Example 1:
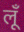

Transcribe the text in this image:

लूँ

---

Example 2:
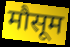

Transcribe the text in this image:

मौसूम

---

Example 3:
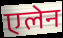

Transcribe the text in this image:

एलेन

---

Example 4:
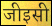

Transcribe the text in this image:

जीइसी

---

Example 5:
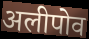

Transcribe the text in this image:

अलीपोव